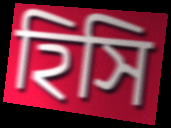
হিসি